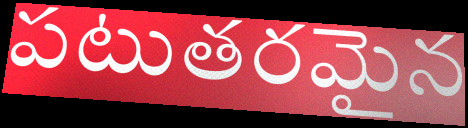
పటుతరమైన